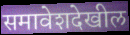
समावेशदेखील